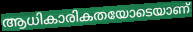
ആധികാരികതയോടെയാണ്